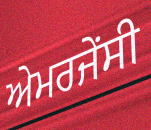
ਅੇਮਰਜੇਂਸੀ